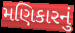
મણિકારનું